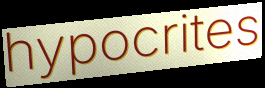
hypocrites